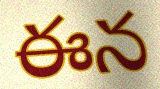
ఈన